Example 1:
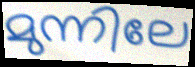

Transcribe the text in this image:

മുന്നിലേ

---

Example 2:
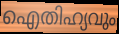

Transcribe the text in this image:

ഐതിഹ്യവും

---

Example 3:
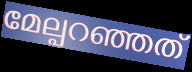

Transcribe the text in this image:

മേല്പറഞ്ഞത്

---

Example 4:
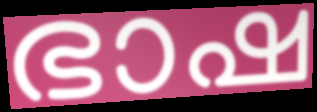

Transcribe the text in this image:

ഭാഷ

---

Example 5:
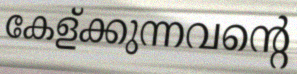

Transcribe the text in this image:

കേള്ക്കുന്നവന്റെ